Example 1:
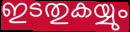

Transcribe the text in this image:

ഇടതുകയ്യും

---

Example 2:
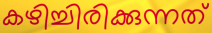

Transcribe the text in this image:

കഴിച്ചിരിക്കുന്നത്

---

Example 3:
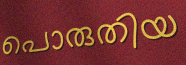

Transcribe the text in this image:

പൊരുതിയ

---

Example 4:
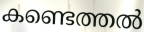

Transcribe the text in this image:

കണ്ടെത്തൽ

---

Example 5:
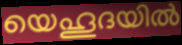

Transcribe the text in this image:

യെഹൂദയിൽ